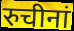
रुचीनां